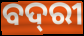
ବଦ୍‌ରୀ